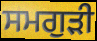
ਸਮਗੁੜੀ